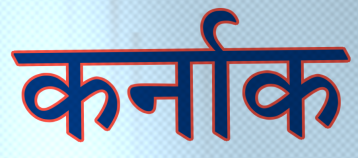
कर्नाक